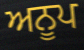
ਅਨੂਪ